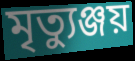
মৃত্যুঞ্জয়